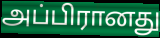
அப்பிரானது